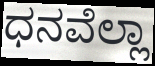
ಧನವೆಲ್ಲಾ